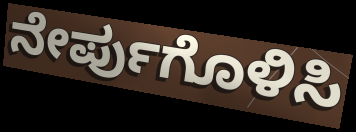
ನೇರ್ಪುಗೊಳಿಸಿ